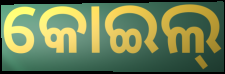
କୋଇଲ୍